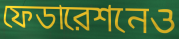
ফেডারেশনেও